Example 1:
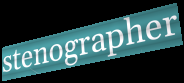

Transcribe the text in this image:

stenographer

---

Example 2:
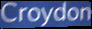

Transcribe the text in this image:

Croydon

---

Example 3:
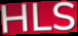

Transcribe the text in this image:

HLS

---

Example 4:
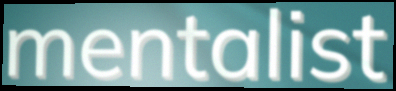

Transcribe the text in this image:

mentalist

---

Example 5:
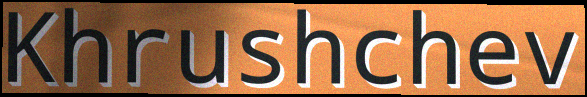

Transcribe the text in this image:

Khrushchev